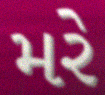
મરે